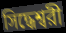
সিদ্ধেশ্বরী